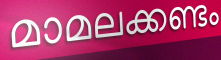
മാമലക്കണ്ടം